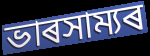
ভাৰসাম্যৰ